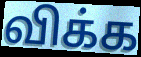
விக்க